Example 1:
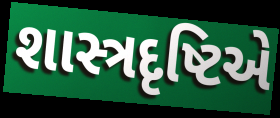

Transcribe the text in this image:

શાસ્ત્રદૃષ્ટિએ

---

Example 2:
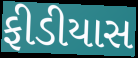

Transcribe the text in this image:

ફીડીયાસ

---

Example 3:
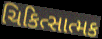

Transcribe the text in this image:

ચિકિત્સાત્મક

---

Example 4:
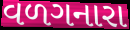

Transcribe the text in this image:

વળગનારા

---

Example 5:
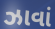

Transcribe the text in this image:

ઝાવાં